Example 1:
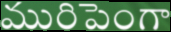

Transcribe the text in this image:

మురిపెంగా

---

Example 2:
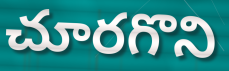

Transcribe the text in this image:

చూరగొని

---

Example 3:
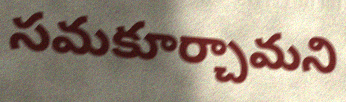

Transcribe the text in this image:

సమకూర్చామని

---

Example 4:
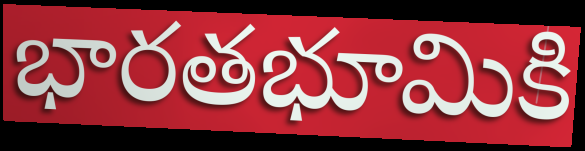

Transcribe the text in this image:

భారతభూమికి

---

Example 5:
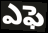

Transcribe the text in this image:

ఎఫె